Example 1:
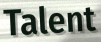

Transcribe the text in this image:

Talent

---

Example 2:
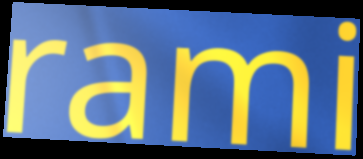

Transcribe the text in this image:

rami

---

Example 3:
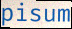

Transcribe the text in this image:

pisum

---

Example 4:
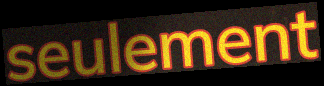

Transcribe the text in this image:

seulement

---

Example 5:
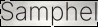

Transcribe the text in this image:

Samphel